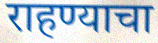
राहण्याचा